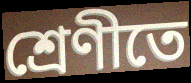
শ্ৰেণীতে